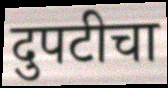
दुपटीचा